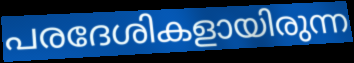
പരദേശികളായിരുന്ന